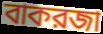
বাকরজা